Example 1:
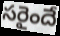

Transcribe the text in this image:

సరైందే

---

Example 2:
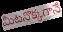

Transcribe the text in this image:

మీటనొక్కగానే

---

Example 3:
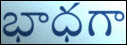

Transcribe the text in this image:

భాధగా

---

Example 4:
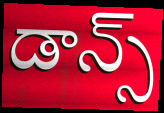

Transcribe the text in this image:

డాన్స్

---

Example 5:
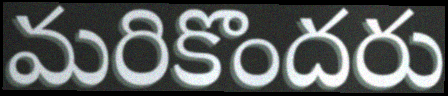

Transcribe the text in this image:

మరికొందరు